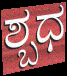
ಶ್ಬಧ